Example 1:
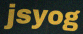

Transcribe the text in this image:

jsyog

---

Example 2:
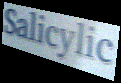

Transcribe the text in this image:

Salicylic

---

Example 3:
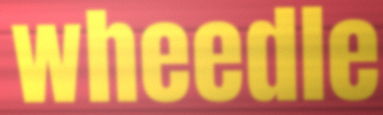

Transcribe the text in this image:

wheedle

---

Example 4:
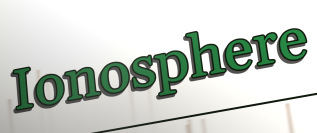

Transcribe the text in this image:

Ionosphere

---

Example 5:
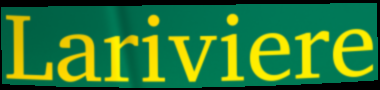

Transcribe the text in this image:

Lariviere